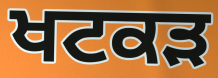
ਖਟਕੜ